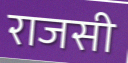
राजसी